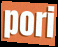
pori